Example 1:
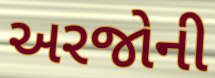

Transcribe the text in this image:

અરજોની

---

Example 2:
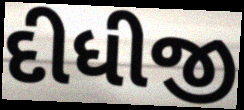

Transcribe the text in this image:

દીધીજી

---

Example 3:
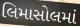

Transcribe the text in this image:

લિમાસોલમાં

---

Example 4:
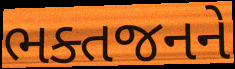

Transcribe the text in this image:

ભક્તજનને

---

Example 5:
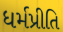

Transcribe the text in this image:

ધર્મપ્રીતિ